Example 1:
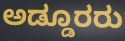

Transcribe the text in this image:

ಅಡ್ಡೂರರು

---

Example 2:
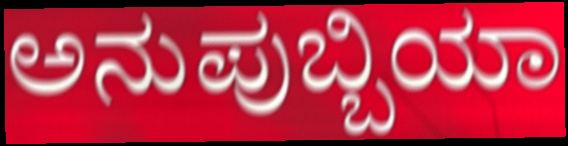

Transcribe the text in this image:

ಅನುಪುಬ್ಬಿಯಾ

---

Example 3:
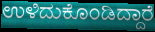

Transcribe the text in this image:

ಉಳಿದುಕೊಂಡಿದ್ದಾರೆ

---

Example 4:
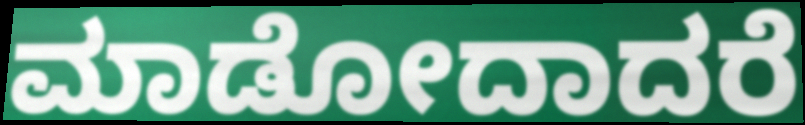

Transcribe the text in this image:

ಮಾಡೋದಾದರೆ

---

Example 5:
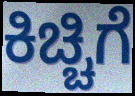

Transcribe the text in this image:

ಕಿಚ್ಚಿಗೆ